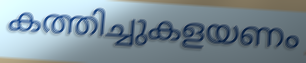
കത്തിച്ചുകളയണം